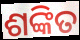
ଶଙ୍କିତ